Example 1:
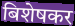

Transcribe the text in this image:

बिशेषकर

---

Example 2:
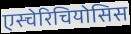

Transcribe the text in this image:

एस्चेरिचियोसिस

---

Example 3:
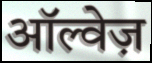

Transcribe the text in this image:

ऑल्वेज़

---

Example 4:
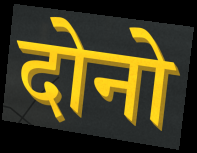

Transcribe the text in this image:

दोनो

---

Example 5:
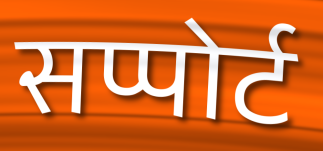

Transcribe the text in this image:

सप्पोर्ट